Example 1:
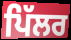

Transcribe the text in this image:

ਪਿੱਲਰ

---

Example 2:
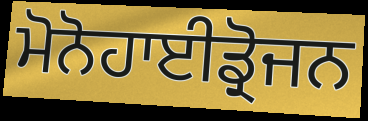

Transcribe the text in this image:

ਮੋਨੋਹਾਈਡ੍ਰੋਜਨ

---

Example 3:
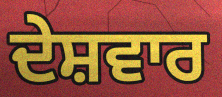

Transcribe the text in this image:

ਦੇਸ਼ਵਾਰ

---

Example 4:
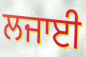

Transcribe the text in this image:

ਲਜਾਈ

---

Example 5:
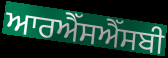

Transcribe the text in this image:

ਆਰਐੱਸਐੱਸਬੀ